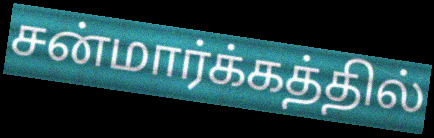
சன்மார்க்கத்தில்